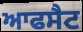
ਆਫਸੈਟ